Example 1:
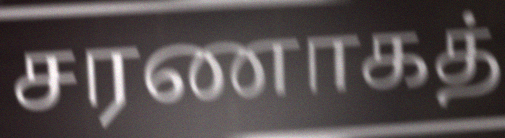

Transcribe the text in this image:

சரணாகத்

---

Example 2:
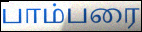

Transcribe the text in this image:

பாம்பரை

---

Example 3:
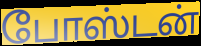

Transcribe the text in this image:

போஸ்டன்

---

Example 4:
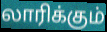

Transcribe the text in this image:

லாரிக்கும்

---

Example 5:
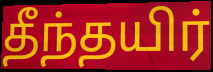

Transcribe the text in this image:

தீந்தயிர்